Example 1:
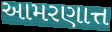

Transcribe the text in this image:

આમરણાત્ત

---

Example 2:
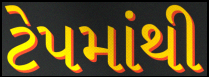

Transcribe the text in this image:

ટેપમાંથી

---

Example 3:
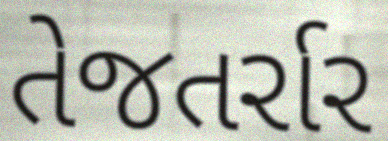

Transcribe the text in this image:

તેજતર્રાર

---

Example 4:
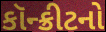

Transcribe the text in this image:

કૉન્ક્રીટનો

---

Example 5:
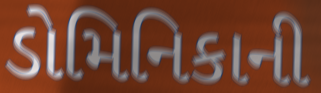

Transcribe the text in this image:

ડોમિનિકાની